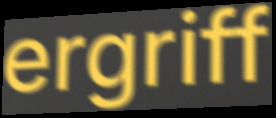
ergriff